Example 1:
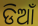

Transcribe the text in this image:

ଡିଆଁ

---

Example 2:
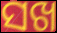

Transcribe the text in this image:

ସଖ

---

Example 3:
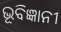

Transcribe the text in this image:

ଭୂବିଜ୍ଞାନୀ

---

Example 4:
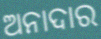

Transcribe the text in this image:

ଅନାଦାର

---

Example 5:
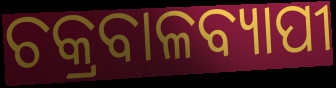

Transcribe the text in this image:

ଚକ୍ରବାଳବ୍ୟାପୀ